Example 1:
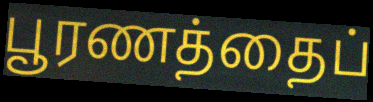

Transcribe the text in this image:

பூரணத்தைப்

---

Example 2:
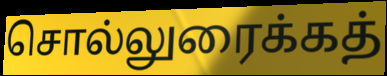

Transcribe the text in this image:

சொல்லுரைக்கத்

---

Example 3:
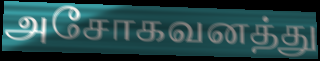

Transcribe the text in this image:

அசோகவனத்து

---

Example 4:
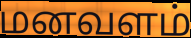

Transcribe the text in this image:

மனவளம்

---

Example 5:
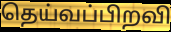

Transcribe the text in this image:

தெய்வப்பிறவி